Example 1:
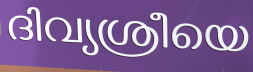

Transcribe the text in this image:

ദിവ്യശ്രീയെ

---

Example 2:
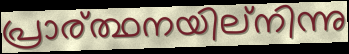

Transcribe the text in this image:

പ്രാര്ത്ഥനയില്നിന്നു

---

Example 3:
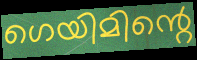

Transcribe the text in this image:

ഗെയിമിന്റെ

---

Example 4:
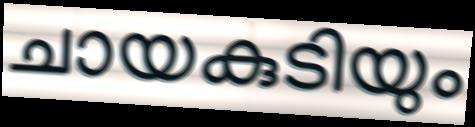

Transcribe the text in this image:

ചായകുടിയും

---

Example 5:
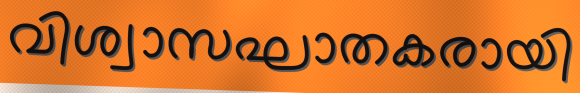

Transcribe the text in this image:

വിശ്വാസഘാതകരായി